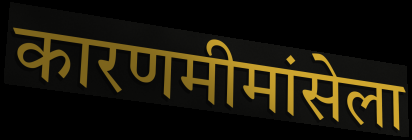
कारणमीमांसेला